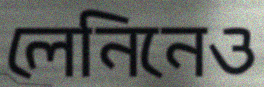
লেনিনেও